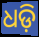
ଧଡ଼ି